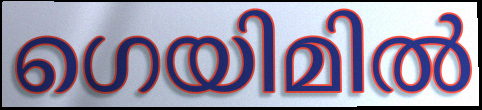
ഗെയിമിൽ